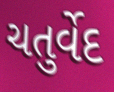
ચતુર્વેદ